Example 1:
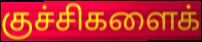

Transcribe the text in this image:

குச்சிகளைக்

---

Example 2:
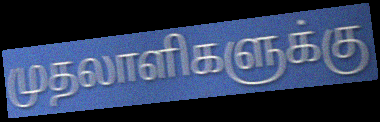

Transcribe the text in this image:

முதலாளிகளுக்கு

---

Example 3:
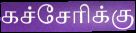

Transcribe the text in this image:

கச்சேரிக்கு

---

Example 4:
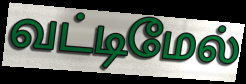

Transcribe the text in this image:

வட்டிமேல்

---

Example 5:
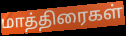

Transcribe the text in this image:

மாத்திரைகள்